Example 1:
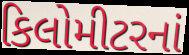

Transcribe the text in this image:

કિલોમીટરનાં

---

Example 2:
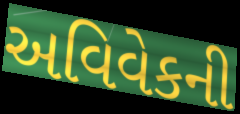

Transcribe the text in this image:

અવિવેકની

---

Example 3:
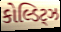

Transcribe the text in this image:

કોલ્ડિટ્ઝ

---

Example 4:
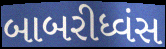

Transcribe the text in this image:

બાબરીધ્વંસ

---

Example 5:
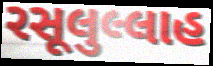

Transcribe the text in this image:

રસૂલુલ્લાહ